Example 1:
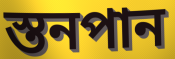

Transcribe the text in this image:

স্তনপান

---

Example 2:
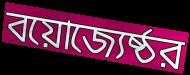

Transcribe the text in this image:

বয়োজ্যেষ্ঠর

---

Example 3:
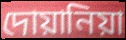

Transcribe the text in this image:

দোয়ানিয়া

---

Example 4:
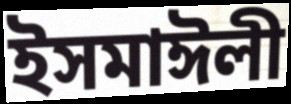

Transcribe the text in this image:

ইসমাঈলী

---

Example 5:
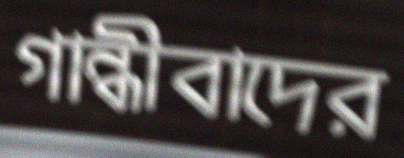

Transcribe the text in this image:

গান্ধীবাদের